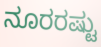
ನೂರರಷ್ಟು